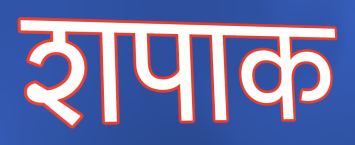
शपाक